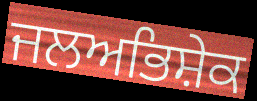
ਜਲਅਭਿਸ਼ੇਕ